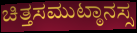
ಚಿತ್ತಸಮುಟ್ಠಾನಸ್ಸ